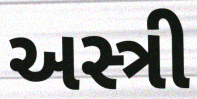
અસ્ત્રી